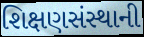
શિક્ષણસંસ્થાની